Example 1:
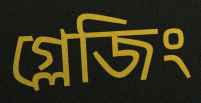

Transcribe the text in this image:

গ্লেজিং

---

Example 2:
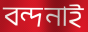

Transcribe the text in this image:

বন্দনাই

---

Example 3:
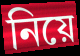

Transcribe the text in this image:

নিয়ে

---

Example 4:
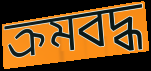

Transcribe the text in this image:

ক্ৰমবদ্ধ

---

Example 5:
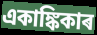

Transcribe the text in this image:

একাঙ্কিকাৰ